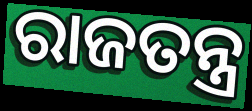
ରାଜତନ୍ତ୍ର